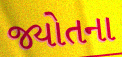
જ્યોતના